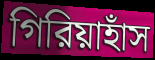
গিরিয়াহাঁস